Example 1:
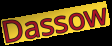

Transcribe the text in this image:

Dassow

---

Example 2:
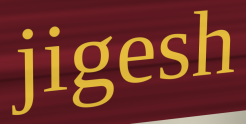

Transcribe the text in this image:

jigesh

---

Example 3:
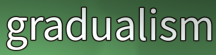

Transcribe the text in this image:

gradualism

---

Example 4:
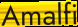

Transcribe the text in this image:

Amalfi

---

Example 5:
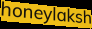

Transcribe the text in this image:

honeylaksh